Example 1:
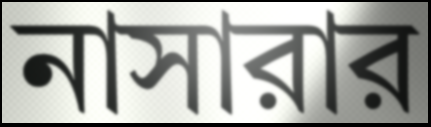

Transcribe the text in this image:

নাসারার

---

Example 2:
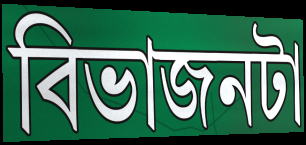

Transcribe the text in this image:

বিভাজনটা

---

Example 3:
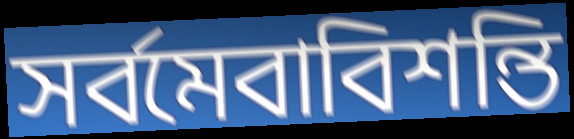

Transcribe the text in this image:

সর্বমেবাবিশন্তি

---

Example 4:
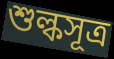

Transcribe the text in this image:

শুল্কসূত্র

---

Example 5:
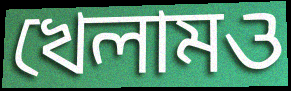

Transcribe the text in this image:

খেলামও